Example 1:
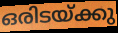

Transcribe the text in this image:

ഒരിടയ്ക്കു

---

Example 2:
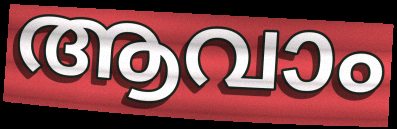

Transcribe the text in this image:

ആവാം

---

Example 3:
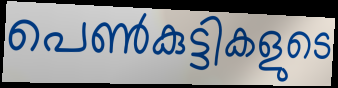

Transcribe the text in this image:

പെൺകുട്ടികളുടെ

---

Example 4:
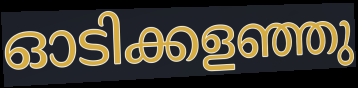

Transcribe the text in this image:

ഓടിക്കളഞ്ഞു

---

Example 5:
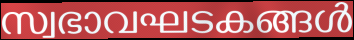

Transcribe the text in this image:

സ്വഭാവഘടകങ്ങൾ